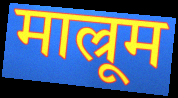
माल्रूम